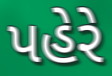
પહેરે